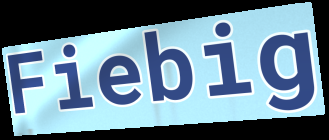
Fiebig